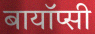
बायॉप्सी